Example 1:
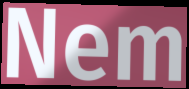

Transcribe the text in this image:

Nem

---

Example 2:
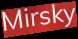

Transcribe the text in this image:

Mirsky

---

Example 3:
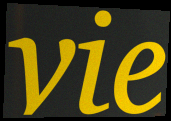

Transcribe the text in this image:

vie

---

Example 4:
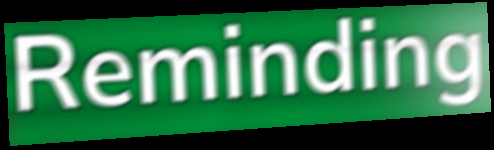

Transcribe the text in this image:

Reminding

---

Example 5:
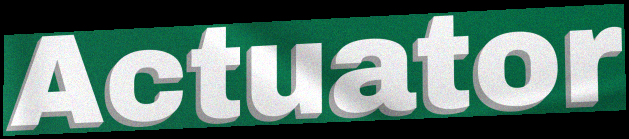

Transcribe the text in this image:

Actuator